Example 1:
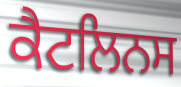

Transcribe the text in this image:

ਕੈਟਲਿਨਸ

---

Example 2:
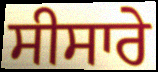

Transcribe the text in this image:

ਸੀਸਾਰੇ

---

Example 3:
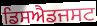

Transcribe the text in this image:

ਡਿਸਐਡਜਸਟ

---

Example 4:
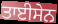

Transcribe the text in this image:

ਤਾਈਸੇਨ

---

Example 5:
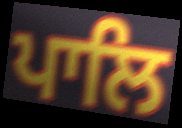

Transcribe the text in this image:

ਪਾਲਿ